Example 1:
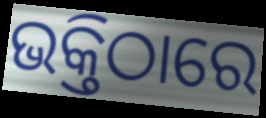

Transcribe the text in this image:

ଭକ୍ତିଠାରେ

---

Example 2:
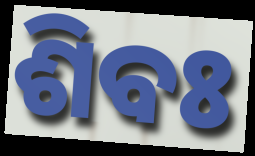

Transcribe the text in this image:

ଶିବଃ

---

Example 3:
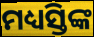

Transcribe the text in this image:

ମଧ୍ୟସ୍ତିଙ୍କ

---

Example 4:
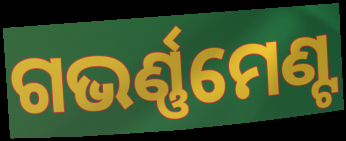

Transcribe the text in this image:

ଗଭର୍ଣ୍ଣମେଣ୍ଟ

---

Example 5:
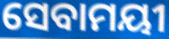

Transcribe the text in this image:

ସେବାମୟୀ